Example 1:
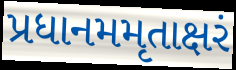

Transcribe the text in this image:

પ્રધાનમમૃતાક્ષરં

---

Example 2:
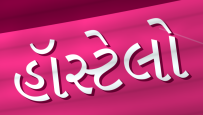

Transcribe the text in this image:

હૉસ્ટેલો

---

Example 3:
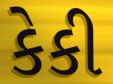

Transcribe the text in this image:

કેકી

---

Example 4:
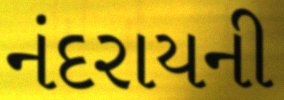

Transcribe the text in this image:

નંદરાયની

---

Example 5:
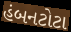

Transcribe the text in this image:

હંબનટોટા